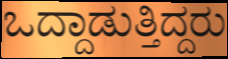
ಒದ್ದಾಡುತ್ತಿದ್ದರು